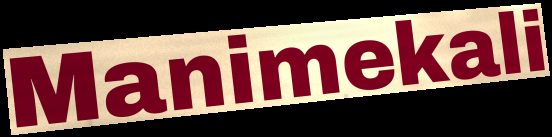
Manimekali